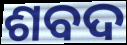
ଶବଦ